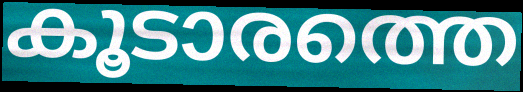
കൂടാരത്തെ